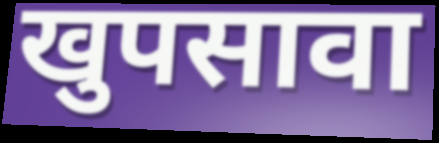
खुपसावा